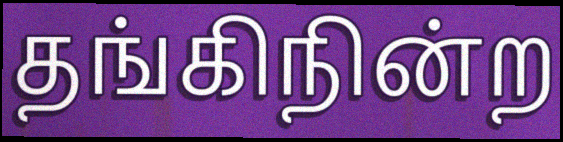
தங்கிநின்ற